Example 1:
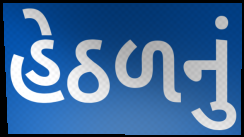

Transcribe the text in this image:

હેઠળનું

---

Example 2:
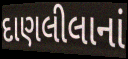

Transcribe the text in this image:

દાણલીલાનાં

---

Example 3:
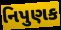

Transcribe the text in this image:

નિપુણક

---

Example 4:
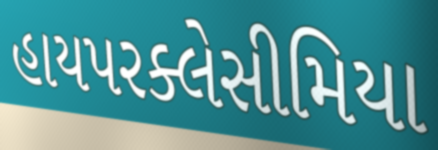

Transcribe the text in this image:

હાયપરક્લેસીમિયા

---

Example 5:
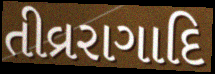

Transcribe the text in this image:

તીવ્રરાગાદિ